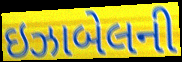
ઇઝાબેલની